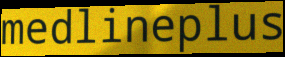
medlineplus